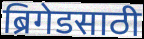
ब्रिगेडसाठी